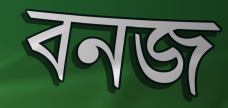
বনজ